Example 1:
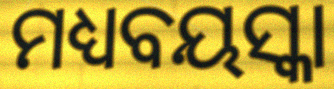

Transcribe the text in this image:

ମଧ୍ୟବୟସ୍କା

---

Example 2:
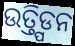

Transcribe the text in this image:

ଉତ୍ତ୍ପିଡନ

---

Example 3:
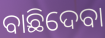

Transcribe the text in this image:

ବାଛିଦେବା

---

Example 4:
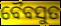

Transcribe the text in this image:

ବୈବସୁତ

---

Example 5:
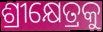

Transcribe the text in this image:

ଶ୍ରୀକ୍ଷେତ୍ରକୁ